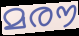
മരൗ